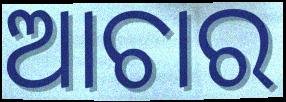
ଆଚାର